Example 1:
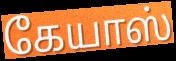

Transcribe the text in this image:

கேயாஸ்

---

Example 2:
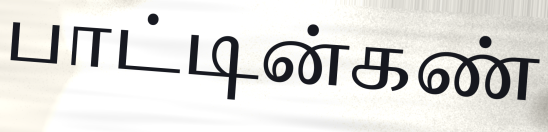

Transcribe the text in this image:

பாட்டின்கண்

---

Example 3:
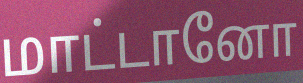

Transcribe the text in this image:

மாட்டானோ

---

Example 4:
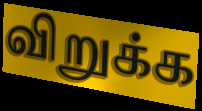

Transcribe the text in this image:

விறுக்க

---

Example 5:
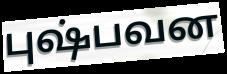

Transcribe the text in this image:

புஷ்பவன